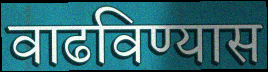
वाढविण्यास